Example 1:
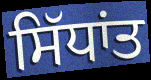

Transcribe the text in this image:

ਸਿੱਧਾਂਤ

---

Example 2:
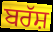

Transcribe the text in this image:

ਬਰੱਸ਼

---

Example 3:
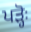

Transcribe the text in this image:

ਪੜ੍ਹੋਃ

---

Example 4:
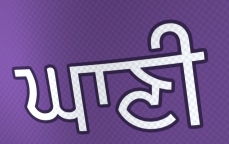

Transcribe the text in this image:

ਘਾਣੀ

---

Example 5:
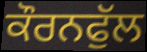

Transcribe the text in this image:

ਕੌਰਨਫੁੱਲ